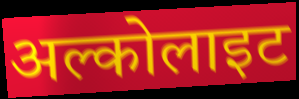
अल्कोलाइट